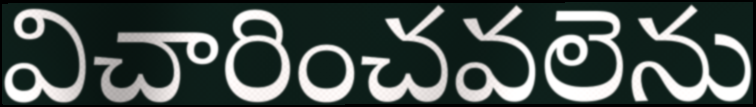
విచారించవలెను